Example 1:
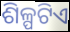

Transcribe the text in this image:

ଶିଳ୍ପଟିଏ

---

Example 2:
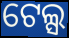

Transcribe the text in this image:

ଟେଲ୍ସ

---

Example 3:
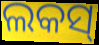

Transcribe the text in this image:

ଲକସ୍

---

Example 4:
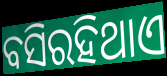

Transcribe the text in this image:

ବସିରହିଥାଏ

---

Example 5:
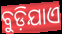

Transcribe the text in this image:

ବୁଡ଼ିଯାଏ